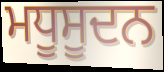
ਮਧੂਸੂਦਨ